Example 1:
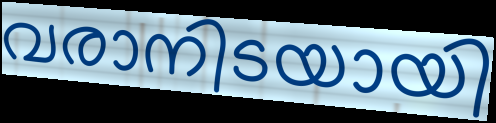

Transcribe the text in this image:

വരാനിടയായി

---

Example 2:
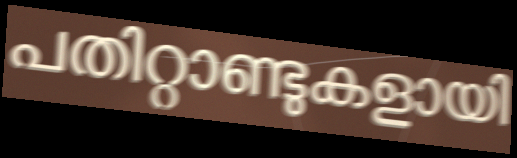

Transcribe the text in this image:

പതിറ്റാണ്ടുകളായി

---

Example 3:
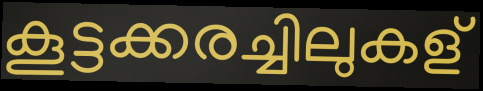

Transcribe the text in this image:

കൂട്ടക്കരച്ചിലുകള്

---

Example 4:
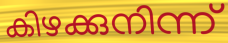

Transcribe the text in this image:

കിഴക്കുനിന്ന്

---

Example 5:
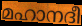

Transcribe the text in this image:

മഹാനദീ